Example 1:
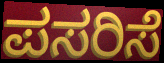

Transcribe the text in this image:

ಪಸರಿಸೆ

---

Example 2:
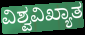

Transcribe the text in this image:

ವಿಶ್ವವಿಖ್ಯಾತ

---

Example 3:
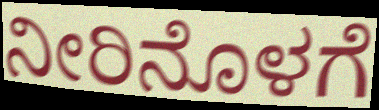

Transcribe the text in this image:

ನೀರಿನೊಳಗೆ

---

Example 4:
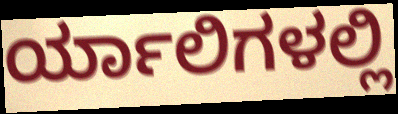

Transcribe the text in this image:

ರ್ಯಾಲಿಗಳಲ್ಲಿ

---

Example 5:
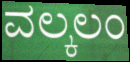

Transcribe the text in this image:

ವಲ್ಕಲಂ